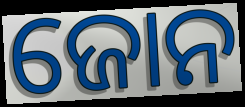
ଜୋନ